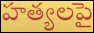
హత్యలపై